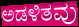
ಅಡಳಿತವು